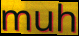
muh